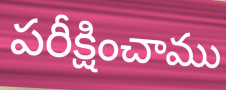
పరీక్షించాము